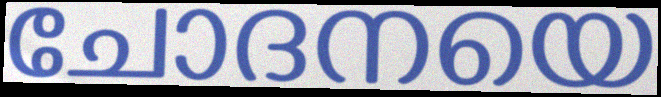
ചോദനയെ